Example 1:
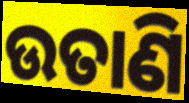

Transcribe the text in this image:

ଉତାଣି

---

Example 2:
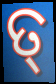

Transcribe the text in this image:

ତ୍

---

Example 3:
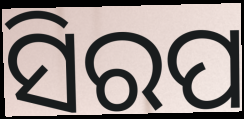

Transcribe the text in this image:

ସିରପ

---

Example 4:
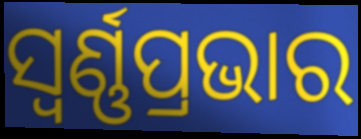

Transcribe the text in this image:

ସ୍ୱର୍ଣ୍ଣପ୍ରଭାର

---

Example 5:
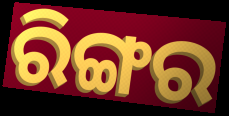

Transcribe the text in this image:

ରିଙ୍ଗର